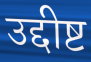
उद्दीष्ट